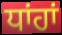
ਧਾਂਹਾਂ